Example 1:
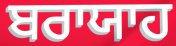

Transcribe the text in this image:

ਬਰਾਯਾਹ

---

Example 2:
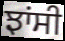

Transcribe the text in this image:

ਝਾਂਸੀ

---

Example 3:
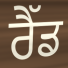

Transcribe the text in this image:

ਰੈੱਡ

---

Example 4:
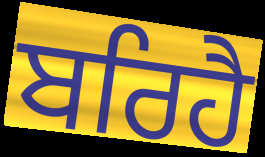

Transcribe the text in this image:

ਬਰਿਹੈ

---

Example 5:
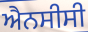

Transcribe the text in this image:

ਐਨਸੀਸੀ